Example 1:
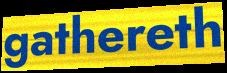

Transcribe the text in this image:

gathereth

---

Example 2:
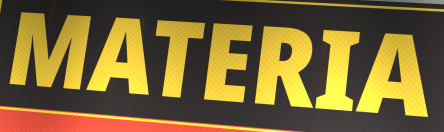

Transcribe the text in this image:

MATERIA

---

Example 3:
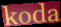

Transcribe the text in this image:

koda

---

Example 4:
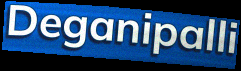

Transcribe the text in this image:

Deganipalli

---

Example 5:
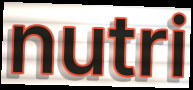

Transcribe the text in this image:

nutri